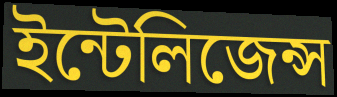
ইন্টেলিজেন্স